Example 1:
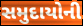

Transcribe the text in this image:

સમુદાયોની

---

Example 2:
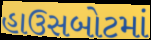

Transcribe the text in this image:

હાઉસબોટમાં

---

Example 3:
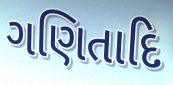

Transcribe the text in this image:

ગણિતાદિ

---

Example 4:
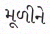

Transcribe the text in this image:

મૂળીને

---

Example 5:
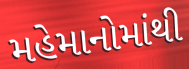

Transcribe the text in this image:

મહેમાનોમાંથી